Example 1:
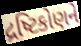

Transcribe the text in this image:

દ્રષ્ટિકોણને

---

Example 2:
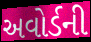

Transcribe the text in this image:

અવોર્ડની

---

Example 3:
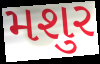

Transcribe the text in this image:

મશુર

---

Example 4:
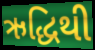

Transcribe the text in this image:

ઋદ્ધિથી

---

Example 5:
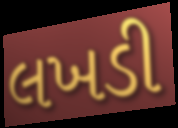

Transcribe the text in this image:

લખડી